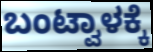
ಬಂಟ್ವಾಳಕ್ಕೆ